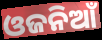
ଓଜନିଆଁ